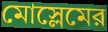
মোস্লেমের